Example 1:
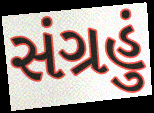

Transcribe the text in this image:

સંગ્રહું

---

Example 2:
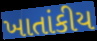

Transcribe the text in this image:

ખાતાંકીય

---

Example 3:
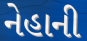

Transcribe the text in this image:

નેહાની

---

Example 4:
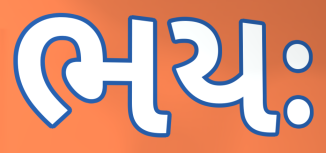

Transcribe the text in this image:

ભયઃ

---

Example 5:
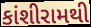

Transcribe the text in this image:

કાંશીરામથી